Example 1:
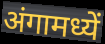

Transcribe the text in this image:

अंगामध्यें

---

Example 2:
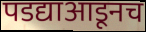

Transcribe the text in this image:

पडद्याआडूनच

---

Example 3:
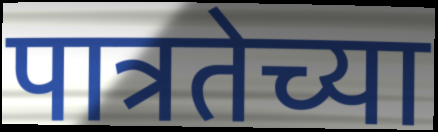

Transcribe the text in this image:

पात्रतेच्या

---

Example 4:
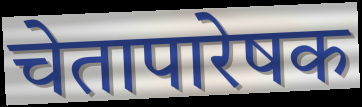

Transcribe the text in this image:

चेतापारेषक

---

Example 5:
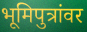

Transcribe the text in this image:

भूमिपुत्रांवर